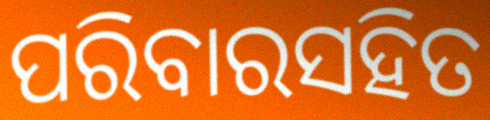
ପରିବାରସହିତ